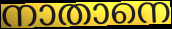
നാതാനെ